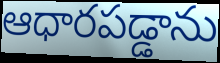
ఆధారపడ్డాను